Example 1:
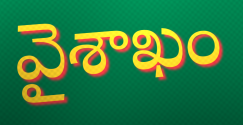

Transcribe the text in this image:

వైశాఖం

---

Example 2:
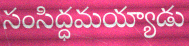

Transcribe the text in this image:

సంసిద్ధమయ్యాడు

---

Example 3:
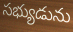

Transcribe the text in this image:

సభ్యుడును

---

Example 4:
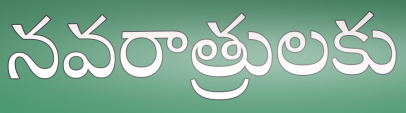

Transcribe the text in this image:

నవరాత్రులకు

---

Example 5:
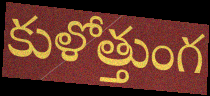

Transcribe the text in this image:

కుళోత్తుంగ